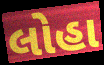
લોહા